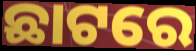
ଛାଟରେ